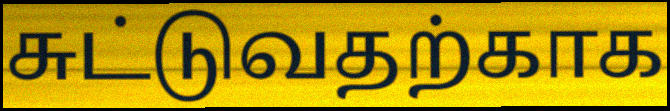
சுட்டுவதற்காக